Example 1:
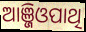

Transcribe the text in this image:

ଆଞ୍ଜିଓପାଥି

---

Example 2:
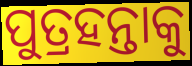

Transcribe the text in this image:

ପୁତ୍ରହନ୍ତାକୁ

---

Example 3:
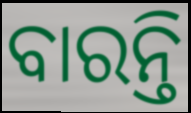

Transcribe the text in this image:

ବାରନ୍ତି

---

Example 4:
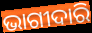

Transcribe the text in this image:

ଭାଗୀଦାରି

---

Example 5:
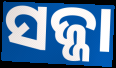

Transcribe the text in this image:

ସଜ୍ଜା